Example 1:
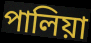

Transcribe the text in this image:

পালিয়া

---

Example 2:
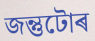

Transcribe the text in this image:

জন্তুটোৰ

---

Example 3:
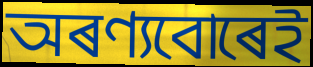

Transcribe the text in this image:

অৰণ্যবোৰেই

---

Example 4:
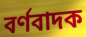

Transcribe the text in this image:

বৰ্ণবাদক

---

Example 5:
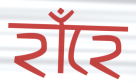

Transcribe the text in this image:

হাঁহে